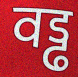
वड्ढ